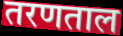
तरणताल